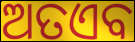
ଅତଏବ